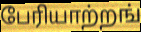
பேரியாற்றங்